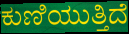
ಕುಣಿಯುತ್ತಿದೆ